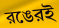
রঙেরই